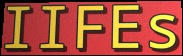
IIFEs